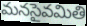
మనసైవమితి